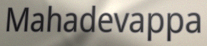
Mahadevappa